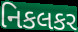
નિકલકર